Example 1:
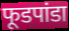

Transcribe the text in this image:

फूडपांडा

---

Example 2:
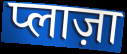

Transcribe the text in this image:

प्लाज़ा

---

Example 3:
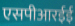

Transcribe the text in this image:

एसपीआरईई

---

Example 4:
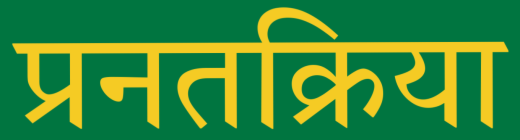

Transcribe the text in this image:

प्रनतक्रिया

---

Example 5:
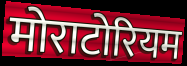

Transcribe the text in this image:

मोराटोरियम